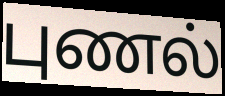
புணல்